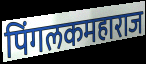
पिंगलकमहाराज